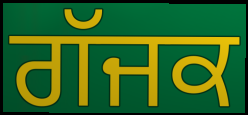
ਗੱਜਕ